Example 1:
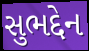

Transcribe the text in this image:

સુભદ્દેન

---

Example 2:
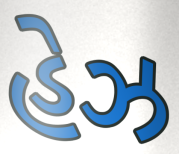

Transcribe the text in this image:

હેઝ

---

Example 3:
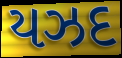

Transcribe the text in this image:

યઝદ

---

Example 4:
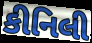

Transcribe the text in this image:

કીનિલી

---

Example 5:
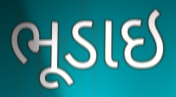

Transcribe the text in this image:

ભૂડાઇ